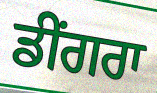
ਡੀਂਗਰਾ